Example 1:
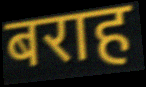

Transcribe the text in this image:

बराह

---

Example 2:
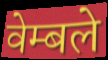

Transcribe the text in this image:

वेम्बले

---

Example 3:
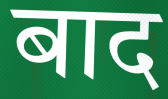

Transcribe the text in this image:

बाद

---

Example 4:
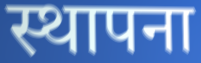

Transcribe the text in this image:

स्थापना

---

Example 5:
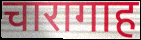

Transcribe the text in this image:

चारागाह